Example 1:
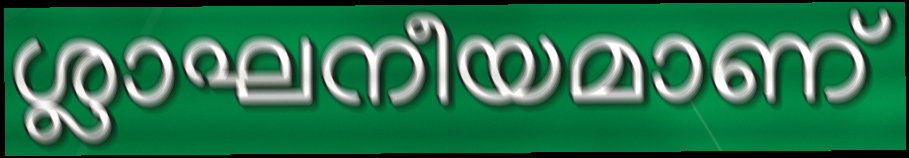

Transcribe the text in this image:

ശ്ലാഘനീയമാണ്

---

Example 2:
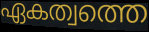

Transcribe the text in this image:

ഏകത്വത്തെ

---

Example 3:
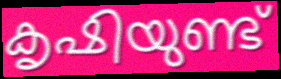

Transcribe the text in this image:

കൃഷിയുണ്ട്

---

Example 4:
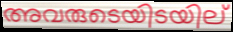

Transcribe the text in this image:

അവരുടെയിടയില്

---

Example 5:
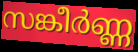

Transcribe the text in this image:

സങ്കീർണ്ണ